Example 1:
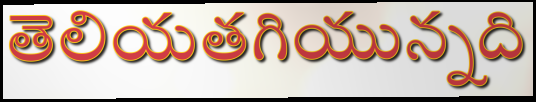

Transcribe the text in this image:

తెలియతగియున్నది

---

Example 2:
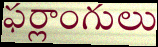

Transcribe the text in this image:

ఫర్లాంగులు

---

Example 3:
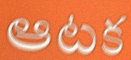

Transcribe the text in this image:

ఆటక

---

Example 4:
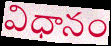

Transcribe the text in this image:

విధానం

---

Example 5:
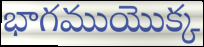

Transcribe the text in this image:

భాగముయొక్క